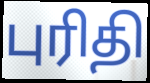
புரிதி